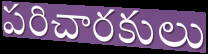
పరిచారకులు